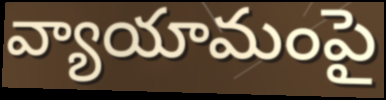
వ్యాయామంపై